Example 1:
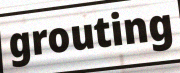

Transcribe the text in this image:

grouting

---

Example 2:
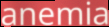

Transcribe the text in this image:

anemia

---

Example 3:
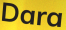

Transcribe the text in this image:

Dara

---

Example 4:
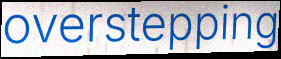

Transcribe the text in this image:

overstepping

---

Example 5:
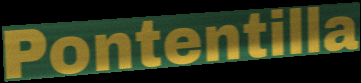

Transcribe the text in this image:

Pontentilla